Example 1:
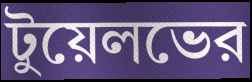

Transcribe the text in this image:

টুয়েলভের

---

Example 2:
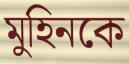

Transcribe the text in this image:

মুহিনকে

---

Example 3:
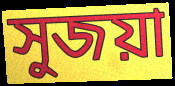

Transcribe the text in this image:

সুজয়া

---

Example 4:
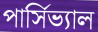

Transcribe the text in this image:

পার্সিভ্যাল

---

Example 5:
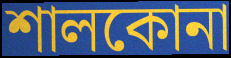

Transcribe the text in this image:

শালকোনা